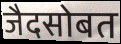
जैदसोबत